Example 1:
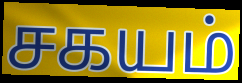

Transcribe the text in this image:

சகயம்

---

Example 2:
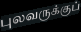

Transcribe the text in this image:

புலவருக்குப்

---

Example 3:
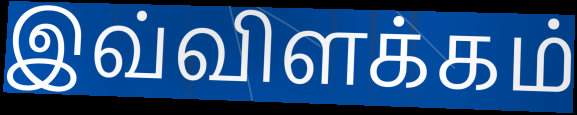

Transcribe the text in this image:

இவ்விளக்கம்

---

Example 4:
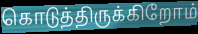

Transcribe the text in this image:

கொடுத்திருக்கிறோம்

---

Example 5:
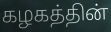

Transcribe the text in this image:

கழகத்தின்